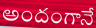
అందంగానే